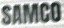
SAMCO